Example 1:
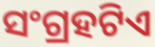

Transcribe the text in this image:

ସଂଗ୍ରହଟିଏ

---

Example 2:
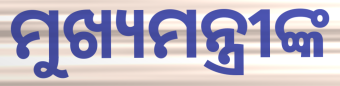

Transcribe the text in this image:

ମୁଖ୍ୟମନ୍ତ୍ରୀଙ୍କ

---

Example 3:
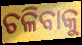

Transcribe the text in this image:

ଚଳିବାକୁ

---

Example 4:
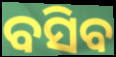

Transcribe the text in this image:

ବସିବ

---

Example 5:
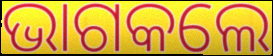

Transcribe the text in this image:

ଭାଗକଲେ